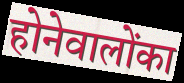
होनेवालोंका